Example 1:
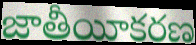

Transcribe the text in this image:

జాతీయీకరణ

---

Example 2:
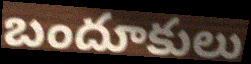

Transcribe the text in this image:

బందూకులు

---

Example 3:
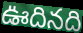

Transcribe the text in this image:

ఊదినది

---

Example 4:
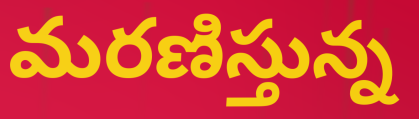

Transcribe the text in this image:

మరణిస్తున్న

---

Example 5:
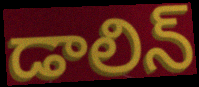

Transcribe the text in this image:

డాలిన్